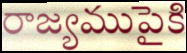
రాజ్యముపైకి